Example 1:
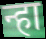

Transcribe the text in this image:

न्हा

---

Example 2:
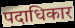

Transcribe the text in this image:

पदाधिकार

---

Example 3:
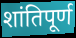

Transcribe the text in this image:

शांतिपूर्ण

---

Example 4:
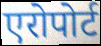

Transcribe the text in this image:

एरोपोर्ट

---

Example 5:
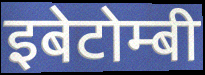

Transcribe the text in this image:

इबेटोम्बी